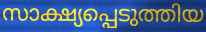
സാക്ഷ്യപ്പെടുത്തിയ